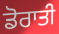
ਡੋਰਾਤੀ